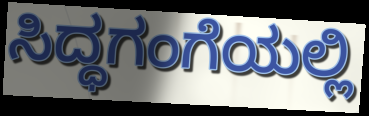
ಸಿದ್ಧಗಂಗೆಯಲ್ಲಿ